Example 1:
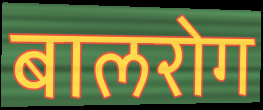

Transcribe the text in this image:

बालरोग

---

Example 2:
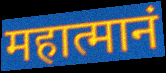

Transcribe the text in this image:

महात्मानं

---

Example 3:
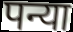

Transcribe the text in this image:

पन्या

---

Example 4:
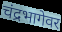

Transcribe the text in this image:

चंद्रभागेवर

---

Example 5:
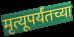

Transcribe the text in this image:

मृत्यूपर्यंतच्या